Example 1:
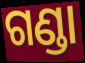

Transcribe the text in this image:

ଗଣ୍ଡା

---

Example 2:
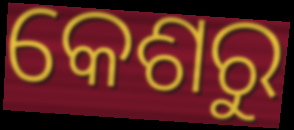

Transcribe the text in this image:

କେଶରୁ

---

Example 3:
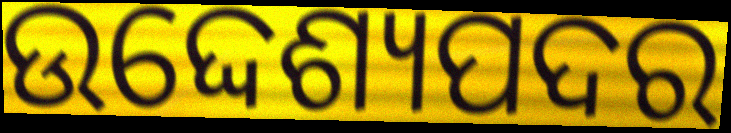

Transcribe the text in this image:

ଉଦ୍ଦେଶ୍ୟପଦର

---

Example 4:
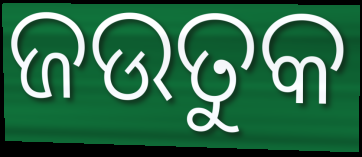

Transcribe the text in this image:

ଜଉତୁକ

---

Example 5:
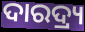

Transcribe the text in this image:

ଦାରଦ୍ର୍ୟ